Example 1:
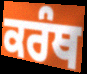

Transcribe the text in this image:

ਕਰੰਥ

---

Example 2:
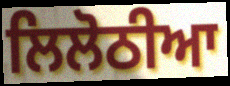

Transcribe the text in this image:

ਲਿਲੋਠੀਆ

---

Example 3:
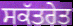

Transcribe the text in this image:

ਸਕੱਤਰੇਤ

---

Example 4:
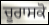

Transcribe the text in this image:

ਚੂਰਾਸਕੋ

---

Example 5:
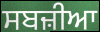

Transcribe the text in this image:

ਸਬਜ਼ੀਆ